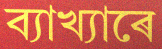
ব্যাখ্যাৰে